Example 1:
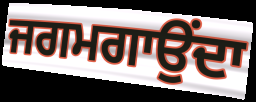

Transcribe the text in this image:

ਜਗਮਗਾਉਂਦਾ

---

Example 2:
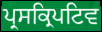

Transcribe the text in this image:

ਪ੍ਰਸਕ੍ਰਿਪਟਿਵ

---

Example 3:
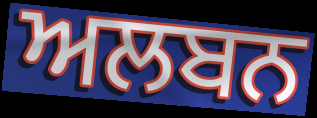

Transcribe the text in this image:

ਅਲਬਨ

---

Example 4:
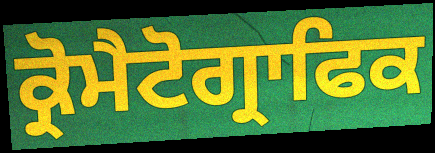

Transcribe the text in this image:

ਕ੍ਰੋਮੈਟੋਗ੍ਰਾਫਿਕ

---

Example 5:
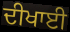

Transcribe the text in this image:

ਦੀਖਾਈ